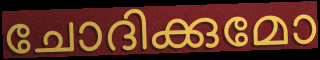
ചോദിക്കുമോ